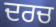
ਦਰਚ